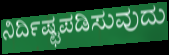
ನಿರ್ದಿಷ್ಟಪಡಿಸುವುದು